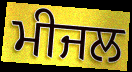
ਮੀਜਲ